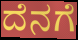
ದೆನಗೆ